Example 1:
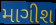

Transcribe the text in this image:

માગીશ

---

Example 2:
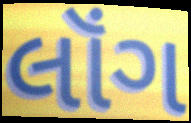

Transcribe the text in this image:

લૉંગ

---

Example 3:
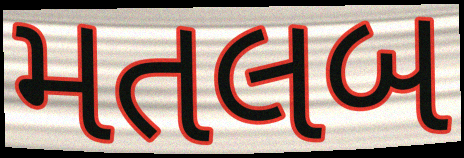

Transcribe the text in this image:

મતલબ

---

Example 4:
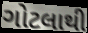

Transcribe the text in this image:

ગોટલાથી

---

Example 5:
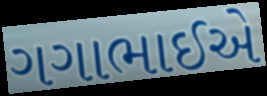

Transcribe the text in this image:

ગગાભાઈએ